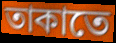
তাকাতে